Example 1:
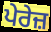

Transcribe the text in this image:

ਪੇਰੇਜ਼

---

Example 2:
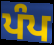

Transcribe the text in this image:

ਪੰਪ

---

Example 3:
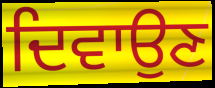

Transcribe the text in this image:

ਦਿਵਾਉਣ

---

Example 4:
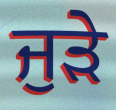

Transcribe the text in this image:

ਜੁੜੇ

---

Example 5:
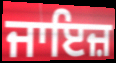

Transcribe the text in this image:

ਜਾਇਜ਼